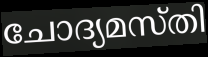
ചോദ്യമസ്തി